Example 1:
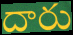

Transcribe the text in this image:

దారు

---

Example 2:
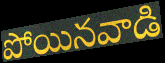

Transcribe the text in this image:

పోయినవాడి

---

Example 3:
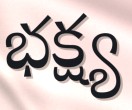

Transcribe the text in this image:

భక్ష్య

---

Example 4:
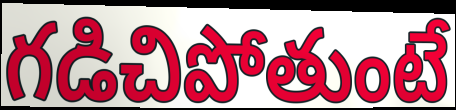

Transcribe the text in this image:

గడిచిపోతుంటే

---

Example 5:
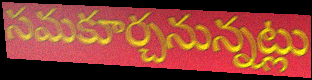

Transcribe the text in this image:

సమకూర్చనున్నట్లు